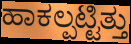
ಹಾಕಲ್ಪಟ್ಟಿತ್ತು